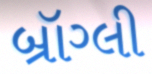
બ્રૉગ્લી